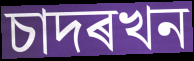
চাদৰখন